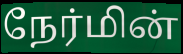
நேர்மின்